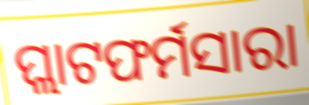
ପ୍ଲାଟଫର୍ମସାରା